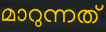
മാറുന്നത്